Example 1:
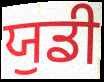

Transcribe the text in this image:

ਯੁਡੀ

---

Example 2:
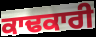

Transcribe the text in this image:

ਕਾਢਕਾਰੀ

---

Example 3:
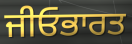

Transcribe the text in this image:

ਜੀਓਭਾਰਤ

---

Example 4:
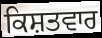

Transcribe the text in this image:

ਕਿਸ਼ਤਵਾਰ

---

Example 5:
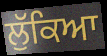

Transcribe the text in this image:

ਲੁੱਕਿਆ